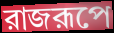
রাজরূপে